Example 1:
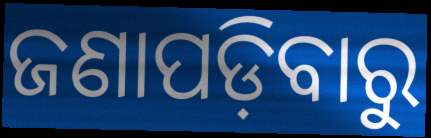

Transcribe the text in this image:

ଜଣାପଡ଼ିବାରୁ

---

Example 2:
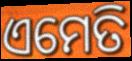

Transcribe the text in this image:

ଏମେତି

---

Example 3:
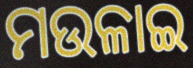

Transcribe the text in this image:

ମଉଳାଇ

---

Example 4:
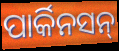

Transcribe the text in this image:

ପାର୍କିନସନ୍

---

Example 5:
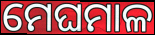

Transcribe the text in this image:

ମେଘମାଳ